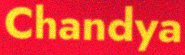
Chandya